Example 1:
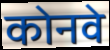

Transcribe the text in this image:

कोनवे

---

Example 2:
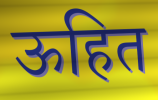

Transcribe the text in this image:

ऊहित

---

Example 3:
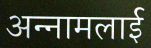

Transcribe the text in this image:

अन्‍नामलाई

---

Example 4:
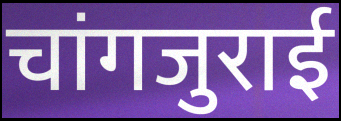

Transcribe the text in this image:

चांगजुराई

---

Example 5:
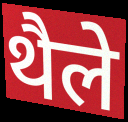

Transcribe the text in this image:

थैले